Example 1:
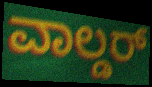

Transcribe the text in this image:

ವಾಲ್ಡರ್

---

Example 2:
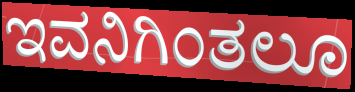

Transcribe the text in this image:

ಇವನಿಗಿಂತಲೂ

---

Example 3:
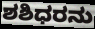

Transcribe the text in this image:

ಶಶಿಧರನು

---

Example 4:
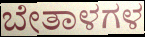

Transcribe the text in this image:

ಬೇತಾಳಗಳ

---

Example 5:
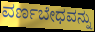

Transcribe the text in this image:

ವರ್ಣಬೇಧವನ್ನು